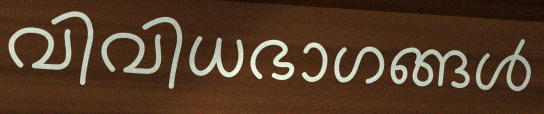
വിവിധഭാഗങ്ങൾ